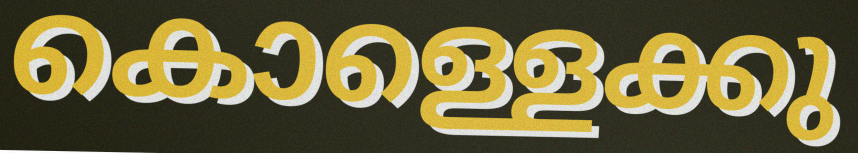
കൊള്ളെക്കു